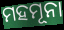
ମହମୂନା